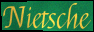
Nietsche